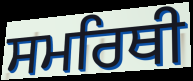
ਸਮਰਿਥੀ